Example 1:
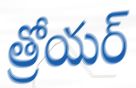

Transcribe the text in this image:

త్రోయర్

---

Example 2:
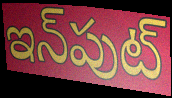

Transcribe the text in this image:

ఇన్‌పుట్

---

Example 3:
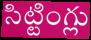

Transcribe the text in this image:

సిట్టింగ్లు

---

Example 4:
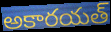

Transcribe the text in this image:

అకారయత్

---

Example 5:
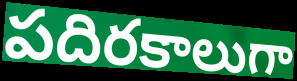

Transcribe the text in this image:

పదిరకాలుగా